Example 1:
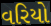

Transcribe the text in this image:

વરિયો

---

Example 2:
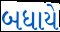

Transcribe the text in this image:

બધાયે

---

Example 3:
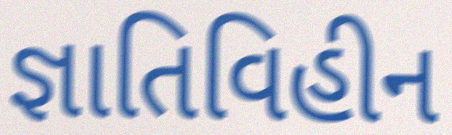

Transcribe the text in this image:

જ્ઞાતિવિહીન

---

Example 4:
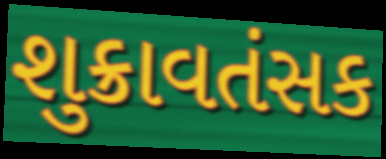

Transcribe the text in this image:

શુક્રાવતંસક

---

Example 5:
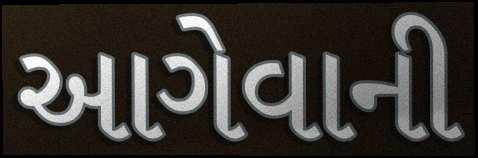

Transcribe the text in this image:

આગેવાની